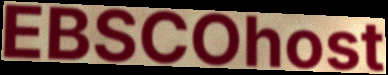
EBSCOhost